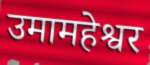
उमामहेश्वर